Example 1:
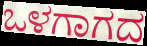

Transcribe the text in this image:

ಒಳಗಾಗದ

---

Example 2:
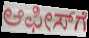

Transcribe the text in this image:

ಆಫೀಸ್‍ಗೆ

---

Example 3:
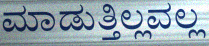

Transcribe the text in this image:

ಮಾಡುತ್ತಿಲ್ಲವಲ್ಲ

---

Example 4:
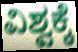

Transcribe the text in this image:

ವಿಶ್ವಕ್ಕೆ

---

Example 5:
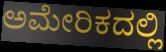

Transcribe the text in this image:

ಅಮೇರಿಕದಲ್ಲಿ